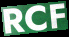
RCF